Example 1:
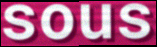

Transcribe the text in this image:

sous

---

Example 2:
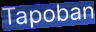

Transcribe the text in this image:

Tapoban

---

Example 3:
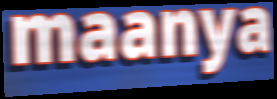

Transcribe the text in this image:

maanya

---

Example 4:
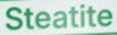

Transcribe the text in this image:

Steatite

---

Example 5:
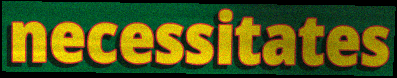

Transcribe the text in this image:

necessitates